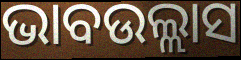
ଭାବଉଲ୍ଲାସ